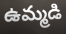
ఉమ్మడి